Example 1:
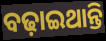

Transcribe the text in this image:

ବଢ଼ାଇଥାନ୍ତି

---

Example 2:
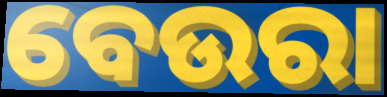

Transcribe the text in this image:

ବେଉରା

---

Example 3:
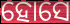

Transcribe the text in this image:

ହୋସେ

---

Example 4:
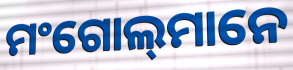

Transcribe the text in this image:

ମଂଗୋଲ୍‍ମାନେ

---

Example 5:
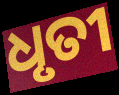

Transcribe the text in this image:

ଧୃତୀ